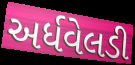
અર્ધવેલડી